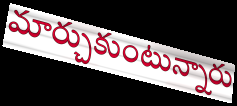
మార్చుకుంటున్నారు